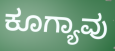
ಕೂಗ್ಯಾವು